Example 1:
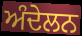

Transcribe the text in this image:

ਅੰਦੇਲਨ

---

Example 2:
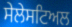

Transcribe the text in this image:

ਸੇਲੇਸਟਿਅਲ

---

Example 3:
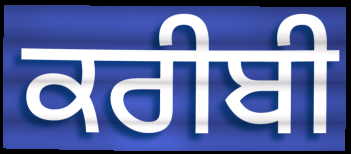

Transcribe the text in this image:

ਕਰੀਬੀ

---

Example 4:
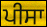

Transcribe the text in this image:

ਪੀਸਾ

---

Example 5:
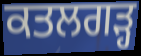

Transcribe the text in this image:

ਕਤਲਗੜ੍ਹ